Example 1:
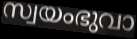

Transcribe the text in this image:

സ്വയംഭുവാ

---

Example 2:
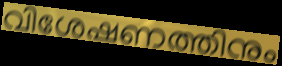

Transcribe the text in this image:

വിശേഷണത്തിനും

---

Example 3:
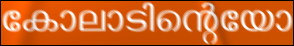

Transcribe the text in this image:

കോലാടിന്റെയോ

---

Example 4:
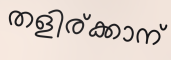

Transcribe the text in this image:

തളിര്ക്കാന്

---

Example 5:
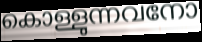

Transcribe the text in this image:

കൊള്ളുന്നവനോ